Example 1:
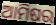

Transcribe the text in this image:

ଆମିଷର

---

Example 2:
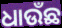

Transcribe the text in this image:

ଧାଉଁଛ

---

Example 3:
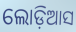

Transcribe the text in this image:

ଲୋଡ଼ିଆସ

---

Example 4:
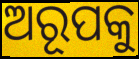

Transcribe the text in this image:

ଅରୂପକୁ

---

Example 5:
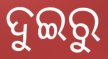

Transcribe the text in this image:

ଦୁଇରୁ